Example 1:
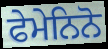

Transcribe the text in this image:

ਫੇਮੇਨਿਨੋ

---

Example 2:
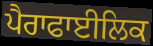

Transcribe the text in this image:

ਪੈਰਾਫਾਈਲਿਕ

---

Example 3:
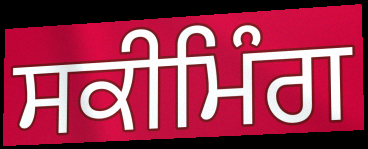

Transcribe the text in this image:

ਸਕੀਮਿੰਗ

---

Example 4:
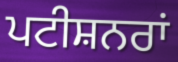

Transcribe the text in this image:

ਪਟੀਸ਼ਨਰਾਂ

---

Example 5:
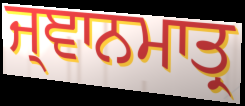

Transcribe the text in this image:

ਜ੍ਞਾਨਮਾਤ੍ਰ